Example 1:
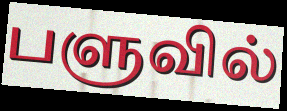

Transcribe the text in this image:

பளுவில்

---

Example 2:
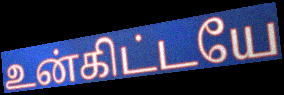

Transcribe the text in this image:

உன்கிட்டயே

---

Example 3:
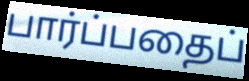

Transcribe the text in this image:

பார்ப்பதைப்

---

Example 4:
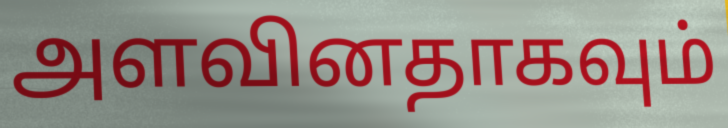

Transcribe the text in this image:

அளவினதாகவும்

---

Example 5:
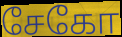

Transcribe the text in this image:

சேகோ